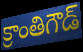
క్రాంతిగౌడ్